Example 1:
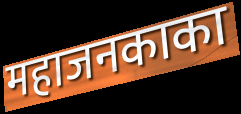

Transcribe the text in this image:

महाजनकाका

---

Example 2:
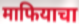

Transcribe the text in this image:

माफियाचा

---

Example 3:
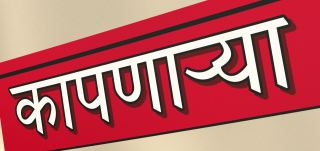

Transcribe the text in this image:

कापणाऱ्या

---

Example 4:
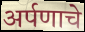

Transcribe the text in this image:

अर्पणाचे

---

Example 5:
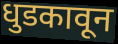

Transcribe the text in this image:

धुडकावून